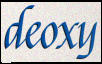
deoxy